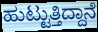
ಹುಟ್ಟುತ್ತಿದ್ದಾನೆ